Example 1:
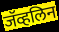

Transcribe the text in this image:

जॅव्हलिन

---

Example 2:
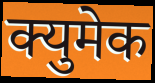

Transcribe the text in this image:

क्युमेक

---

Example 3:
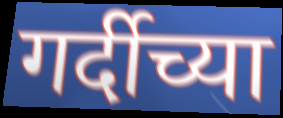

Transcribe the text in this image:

गर्दीच्या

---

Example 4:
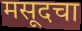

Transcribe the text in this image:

मसूदचा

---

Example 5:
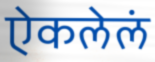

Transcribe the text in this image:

ऐकलेलं